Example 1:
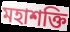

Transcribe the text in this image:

মহাশক্তি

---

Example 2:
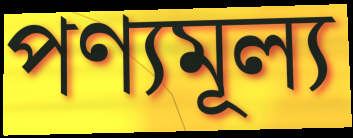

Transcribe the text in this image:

পণ্যমূল্য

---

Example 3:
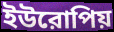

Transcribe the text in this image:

ইউরোপিয়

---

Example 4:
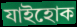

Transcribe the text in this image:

যাইহোক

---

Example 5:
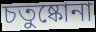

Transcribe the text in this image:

চতুষ্কোনা